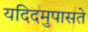
यदिदमुपासते